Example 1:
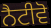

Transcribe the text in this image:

ਨੈਟੀਵੋ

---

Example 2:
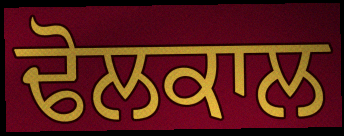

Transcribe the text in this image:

ਢੋਲਕਾਲ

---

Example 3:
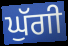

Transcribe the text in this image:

ਘੁੱਗੀ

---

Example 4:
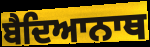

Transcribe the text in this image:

ਬੈਦਿਆਨਾਥ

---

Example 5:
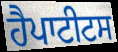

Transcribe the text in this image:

ਹੈਪਾਟੀਟਸ